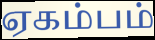
ஏகம்பம்